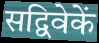
सद्विवेकें